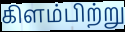
கிளம்பிற்று